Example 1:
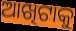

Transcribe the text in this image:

ଆଖିଟାକୁ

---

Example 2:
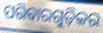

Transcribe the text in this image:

ପରିବାରଗୁଡ଼ିକର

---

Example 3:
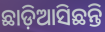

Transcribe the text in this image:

ଛାଡ଼ିଆସିଛନ୍ତି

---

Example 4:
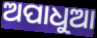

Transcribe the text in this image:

ଅପାଧୁଆ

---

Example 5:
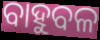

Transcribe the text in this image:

ବାହୁବଳ